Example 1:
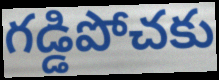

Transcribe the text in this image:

గడ్డిపోచకు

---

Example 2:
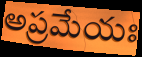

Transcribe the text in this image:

అప్రమేయః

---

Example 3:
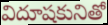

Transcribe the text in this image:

విదూషకునితో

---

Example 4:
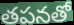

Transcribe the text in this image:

తపనతో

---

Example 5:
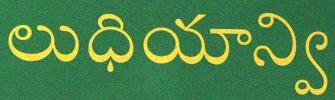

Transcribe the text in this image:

లుధియాన్వి